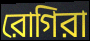
রোগিরা